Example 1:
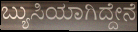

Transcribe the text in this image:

ಬ್ಯುಸಿಯಾಗಿದ್ದೇನೆ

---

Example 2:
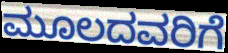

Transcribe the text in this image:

ಮೂಲದವರಿಗೆ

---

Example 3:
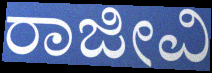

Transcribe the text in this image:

ರಾಜೀವಿ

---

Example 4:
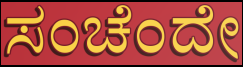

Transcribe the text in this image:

ಸಂಚೆಂದೇ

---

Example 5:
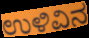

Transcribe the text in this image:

ಉಳಿವಿನ